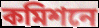
কমিশনে